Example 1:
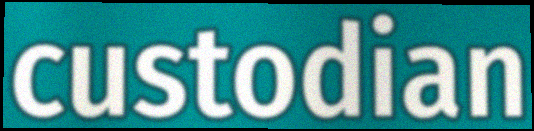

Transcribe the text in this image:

custodian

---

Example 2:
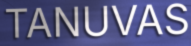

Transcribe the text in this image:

TANUVAS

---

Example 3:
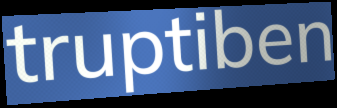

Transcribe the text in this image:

truptiben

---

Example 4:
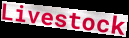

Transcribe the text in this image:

Livestock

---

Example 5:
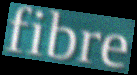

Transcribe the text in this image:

fibre